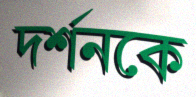
দর্শনকে